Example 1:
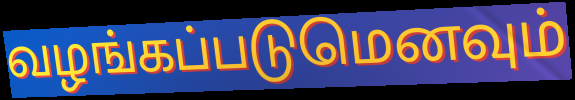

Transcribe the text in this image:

வழங்கப்படுமெனவும்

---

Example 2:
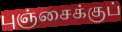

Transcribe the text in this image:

புஞ்சைக்குப்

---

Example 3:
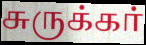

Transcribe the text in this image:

சுருக்கர்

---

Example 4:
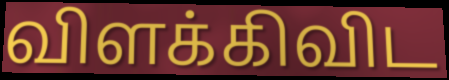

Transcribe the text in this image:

விளக்கிவிட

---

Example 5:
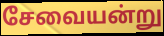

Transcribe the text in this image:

சேவையன்று